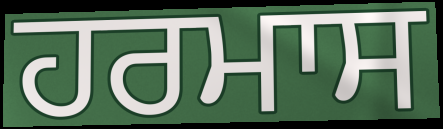
ਹਰਮਾਸ